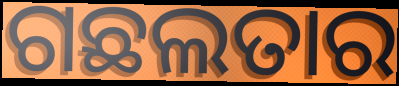
ଗଛଲତାର